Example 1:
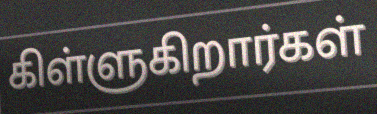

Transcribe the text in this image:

கிள்ளுகிறார்கள்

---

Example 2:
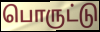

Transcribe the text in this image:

பொருட்டு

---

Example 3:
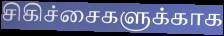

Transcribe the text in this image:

சிகிச்சைகளுக்காக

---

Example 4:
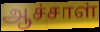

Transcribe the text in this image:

ஆச்சாள்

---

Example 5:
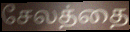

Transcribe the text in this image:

சேலத்தை